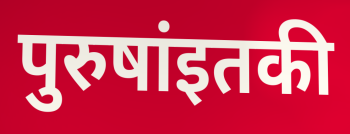
पुरुषांइतकी